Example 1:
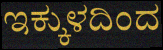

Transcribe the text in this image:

ಇಕ್ಕುಳದಿಂದ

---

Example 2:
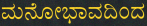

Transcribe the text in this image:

ಮನೋಭಾವದಿಂದ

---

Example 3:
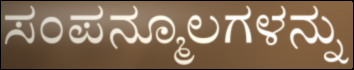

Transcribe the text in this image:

ಸಂಪನ್ಮೂಲಗಳನ್ನು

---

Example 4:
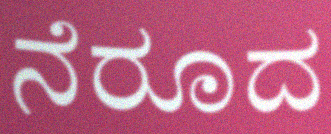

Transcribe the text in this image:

ನೆರೂದ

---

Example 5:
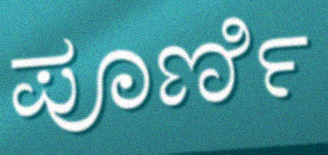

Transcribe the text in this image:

ಪೂರ್ಣಿ